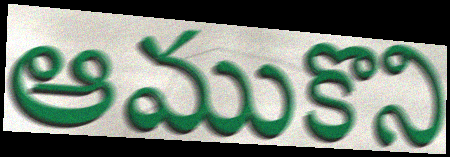
ఆముకొని